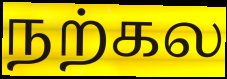
நற்கல